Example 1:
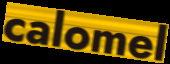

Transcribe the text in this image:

calomel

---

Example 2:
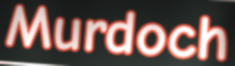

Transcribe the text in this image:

Murdoch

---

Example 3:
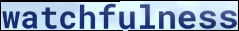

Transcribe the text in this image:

watchfulness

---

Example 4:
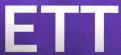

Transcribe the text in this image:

ETT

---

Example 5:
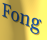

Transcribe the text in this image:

Fong